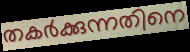
തകർക്കുന്നതിനെ